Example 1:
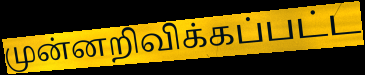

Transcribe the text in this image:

முன்னறிவிக்கப்பட்ட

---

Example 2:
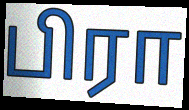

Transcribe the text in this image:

பிரா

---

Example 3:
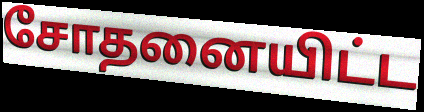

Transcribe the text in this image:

சோதனையிட்ட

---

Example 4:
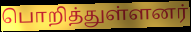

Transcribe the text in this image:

பொறித்துள்ளனர்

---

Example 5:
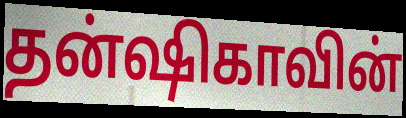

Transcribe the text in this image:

தன்ஷிகாவின்